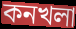
কনখলা